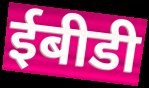
ईबीडी